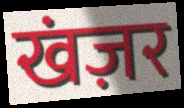
खंज़र